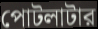
পোটলাটার